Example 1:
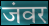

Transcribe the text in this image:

जंवर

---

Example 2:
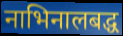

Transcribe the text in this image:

नाभिनालबद्ध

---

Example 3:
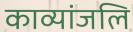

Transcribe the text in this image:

काव्यांजलि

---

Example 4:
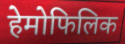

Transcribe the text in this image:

हेमोफिलिक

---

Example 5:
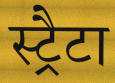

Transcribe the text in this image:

स्ट्रैटा